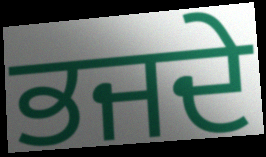
ਭਜਦੇ